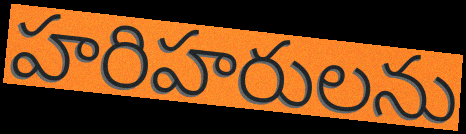
హరిహరులను